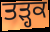
ਤੜ੍ਹਕ